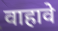
वाहावे